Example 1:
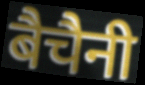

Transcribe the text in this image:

बैचैनी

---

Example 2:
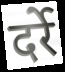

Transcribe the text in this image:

दर्रे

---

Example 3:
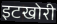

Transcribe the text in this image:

इटखोरी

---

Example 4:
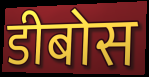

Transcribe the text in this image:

डीबोस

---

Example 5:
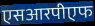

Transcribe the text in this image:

एसआरपीएफ